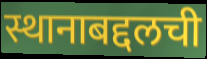
स्थानाबद्दलची